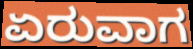
ಏರುವಾಗ